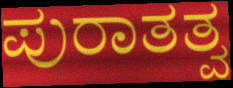
ಪುರಾತತ್ವ